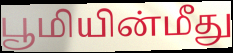
பூமியின்மீது